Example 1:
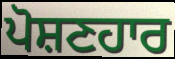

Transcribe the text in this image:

ਪੋਸ਼ਣਹਾਰ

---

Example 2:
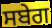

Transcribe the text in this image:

ਸਬੇਗ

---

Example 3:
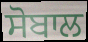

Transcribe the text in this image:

ਸੋਬਾਲ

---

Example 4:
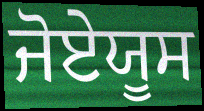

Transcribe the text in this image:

ਜੋਏਯੂਸ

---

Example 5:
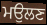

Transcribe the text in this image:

ਮਉਲਣ